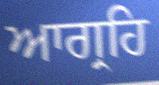
ਆਗ੍ਰਹਿ